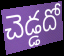
చెడ్డదో